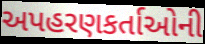
અપહરણકર્તાઓની